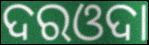
ଦରଓଦା